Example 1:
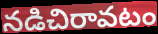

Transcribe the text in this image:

నడిచిరావటం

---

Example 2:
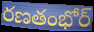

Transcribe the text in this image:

రణతంభోర్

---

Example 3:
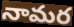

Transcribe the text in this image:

నామర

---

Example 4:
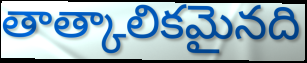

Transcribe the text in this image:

తాత్కాలికమైనది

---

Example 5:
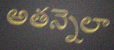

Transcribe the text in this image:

అతన్నెలా